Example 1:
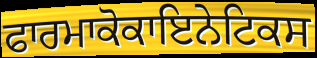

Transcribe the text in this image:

ਫਾਰਮਾਕੋਕਾਇਨੇਟਿਕਸ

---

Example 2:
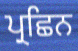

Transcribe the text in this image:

ਪ੍ਰਛਿਨ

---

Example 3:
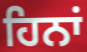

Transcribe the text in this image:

ਹਿਨਾਂ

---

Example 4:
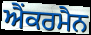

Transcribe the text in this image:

ਐਂਕਰਮੈਨ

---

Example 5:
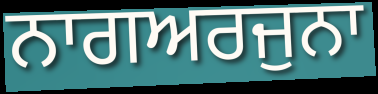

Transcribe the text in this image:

ਨਾਗਅਰਜੁਨਾ